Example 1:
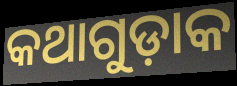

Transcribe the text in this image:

କଥାଗୁଡ଼ାକ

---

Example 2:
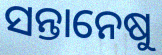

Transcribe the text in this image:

ସନ୍ତାନେଷୁ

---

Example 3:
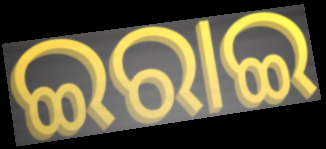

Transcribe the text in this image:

ଇରାଇ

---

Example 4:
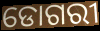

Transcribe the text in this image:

ଡୋଗରୀ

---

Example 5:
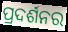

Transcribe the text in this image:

ପ୍ରଦର୍ଶନର